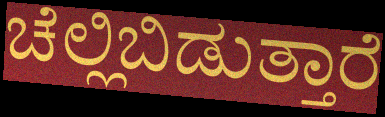
ಚೆಲ್ಲಿಬಿಡುತ್ತಾರೆ